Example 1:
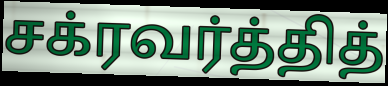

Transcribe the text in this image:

சக்ரவர்த்தித்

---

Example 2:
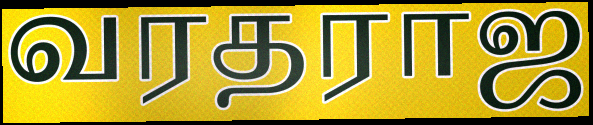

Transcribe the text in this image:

வரதராஜ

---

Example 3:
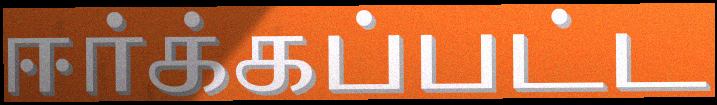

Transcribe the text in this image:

ஈர்க்கப்பட்ட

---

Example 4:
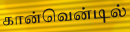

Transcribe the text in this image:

கான்வென்டில்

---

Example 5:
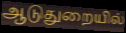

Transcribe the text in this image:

ஆடுதுறையில்